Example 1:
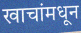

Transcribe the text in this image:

खाचांमधून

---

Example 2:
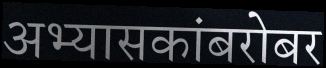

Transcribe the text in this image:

अभ्यासकांबरोबर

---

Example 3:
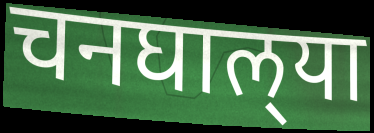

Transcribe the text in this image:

चनघाल्या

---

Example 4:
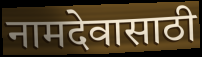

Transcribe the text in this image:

नामदेवासाठी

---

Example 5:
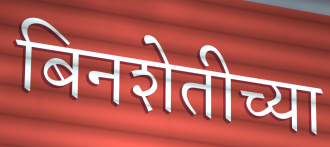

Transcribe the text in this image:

बिनशेतीच्या